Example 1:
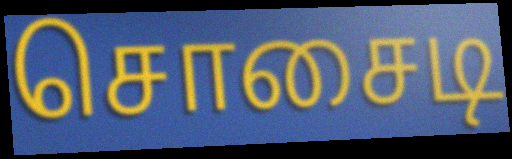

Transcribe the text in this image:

சொசைடி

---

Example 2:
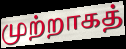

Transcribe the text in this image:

முற்றாகத்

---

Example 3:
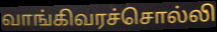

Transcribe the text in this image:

வாங்கிவரச்சொல்லி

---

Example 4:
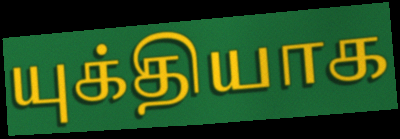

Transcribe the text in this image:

யுக்தியாக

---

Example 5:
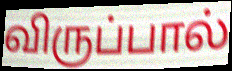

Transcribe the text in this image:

விருப்பால்